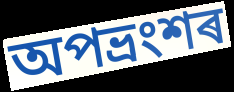
অপভ্ৰংশৰ